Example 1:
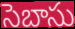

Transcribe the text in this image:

సెబాసు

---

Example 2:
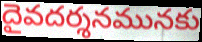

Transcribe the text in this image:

దైవదర్శనమునకు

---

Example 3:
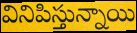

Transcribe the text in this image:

వినిపిస్తున్నాయి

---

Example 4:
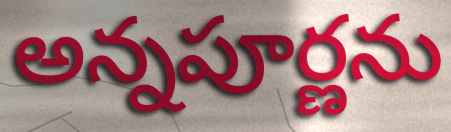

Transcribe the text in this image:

అన్నపూర్ణను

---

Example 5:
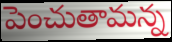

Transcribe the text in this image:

పెంచుతామన్న